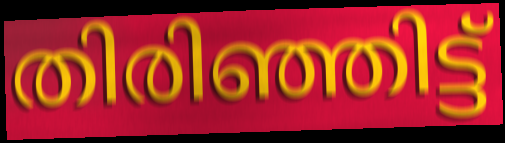
തിരിഞ്ഞിട്ട്